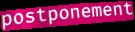
postponement